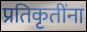
प्रतिकृतींना